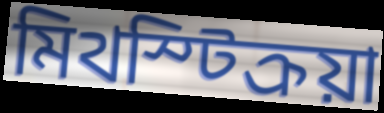
মিথস্ট্ক্রিয়া